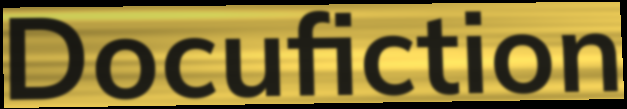
Docufiction